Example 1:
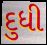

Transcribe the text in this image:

દુધી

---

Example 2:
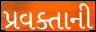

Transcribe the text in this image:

પ્રવક્તાની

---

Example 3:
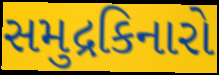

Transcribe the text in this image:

સમુદ્રકિનારો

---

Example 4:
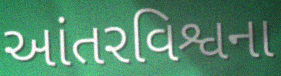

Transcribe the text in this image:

આંતરવિશ્વના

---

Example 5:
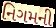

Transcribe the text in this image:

નિગમની